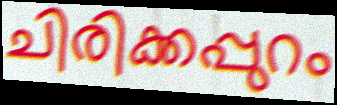
ചിരിക്കപ്പുറം